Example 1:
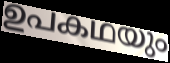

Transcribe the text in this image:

ഉപകഥയും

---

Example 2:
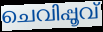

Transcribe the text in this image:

ചെവിപ്പൂവ്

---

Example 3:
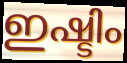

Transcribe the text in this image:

ഇഷ്ടിം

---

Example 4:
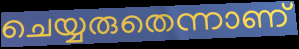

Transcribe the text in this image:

ചെയ്യരുതെന്നാണ്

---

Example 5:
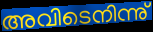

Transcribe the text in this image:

അവിടെനിന്നു്